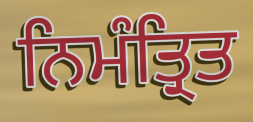
ਨਿਮੰਤ੍ਰਿਤ